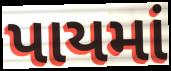
પાયમાં